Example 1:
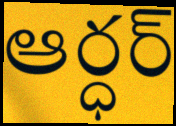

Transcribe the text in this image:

ఆర్ధర్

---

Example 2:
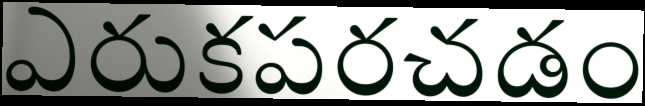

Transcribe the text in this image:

ఎరుకపరచడం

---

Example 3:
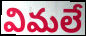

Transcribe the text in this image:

విమలే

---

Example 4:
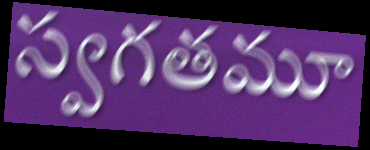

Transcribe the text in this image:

స్వగతమూ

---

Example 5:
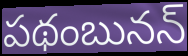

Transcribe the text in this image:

పథంబునన్